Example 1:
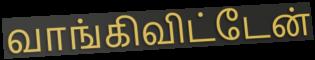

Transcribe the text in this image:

வாங்கிவிட்டேன்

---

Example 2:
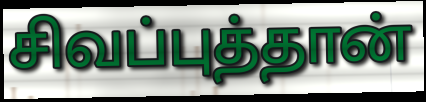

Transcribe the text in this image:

சிவப்புத்தான்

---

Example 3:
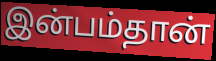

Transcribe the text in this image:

இன்பம்தான்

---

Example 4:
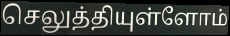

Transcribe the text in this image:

செலுத்தியுள்ளோம்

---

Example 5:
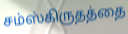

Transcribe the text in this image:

சம்ஸ்கிருதத்தை